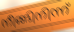
നീങ്ങിനിന്ന്